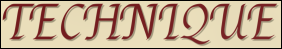
TECHNIQUE